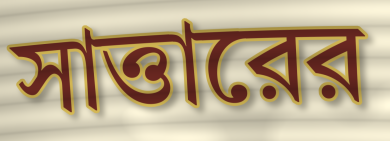
সাত্তারের